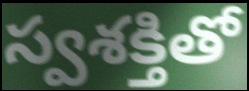
స్వశక్తితో